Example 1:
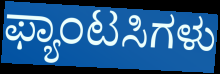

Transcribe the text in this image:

ಫ್ಯಾಂಟಸಿಗಳು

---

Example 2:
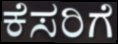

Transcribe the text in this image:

ಕೆಸರಿಗೆ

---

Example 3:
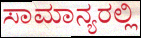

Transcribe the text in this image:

ಸಾಮಾನ್ಯರಲ್ಲಿ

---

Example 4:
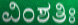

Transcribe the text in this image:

ವಿಂಶತಿಃ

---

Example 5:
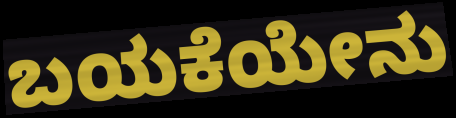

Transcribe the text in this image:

ಬಯಕೆಯೇನು